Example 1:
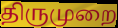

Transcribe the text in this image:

திருமுறை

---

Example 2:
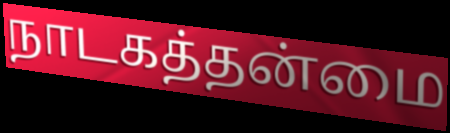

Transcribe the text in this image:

நாடகத்தன்மை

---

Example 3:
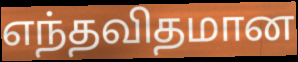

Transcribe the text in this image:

எந்தவிதமான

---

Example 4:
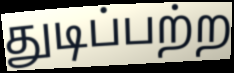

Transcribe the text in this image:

துடிப்பற்ற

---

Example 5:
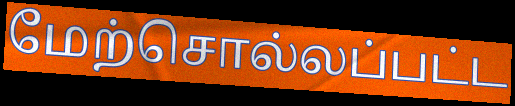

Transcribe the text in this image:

மேற்சொல்லப்பட்ட